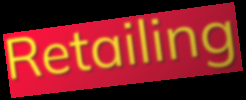
Retailing